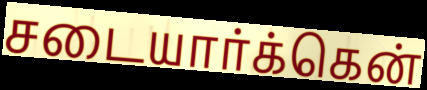
சடையார்க்கென்